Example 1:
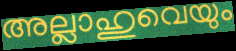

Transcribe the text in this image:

അല്ലാഹുവെയും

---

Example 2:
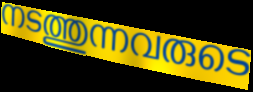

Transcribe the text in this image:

നടത്തുന്നവരുടെ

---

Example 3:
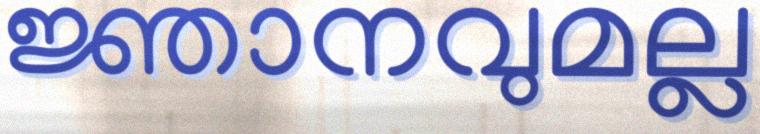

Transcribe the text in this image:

ജ്ഞാനവുമല്ല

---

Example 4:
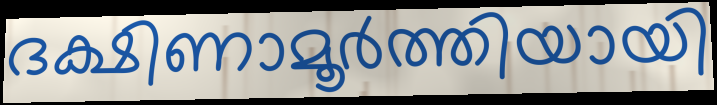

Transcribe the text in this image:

ദക്ഷിണാമൂർത്തിയായി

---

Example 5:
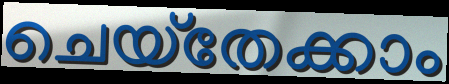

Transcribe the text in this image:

ചെയ്‌തേക്കാം